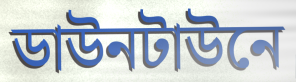
ডাউনটাউনে